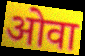
ओवा